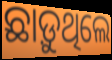
ଛାଡ଼ୁଥିଲେ